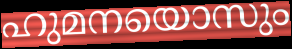
ഹുമനയൊസും